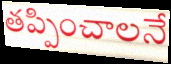
తప్పించాలనే